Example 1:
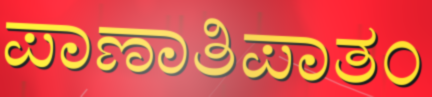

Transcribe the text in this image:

ಪಾಣಾತಿಪಾತಂ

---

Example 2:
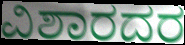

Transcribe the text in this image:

ವಿಶಾರದರ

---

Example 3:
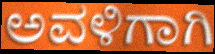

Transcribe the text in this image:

ಅವಳಿಗಾಗಿ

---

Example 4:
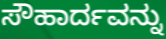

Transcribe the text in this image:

ಸೌಹಾರ್ದವನ್ನು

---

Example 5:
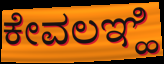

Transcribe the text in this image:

ಕೇವಲಞ್ಹಿ